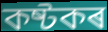
কষ্টকৰ